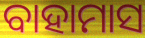
ବାହାମାସ